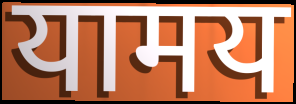
यामय